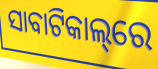
ସାବାଟିକାଲ୍‌ରେ